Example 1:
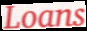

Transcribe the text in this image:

Loans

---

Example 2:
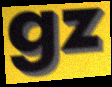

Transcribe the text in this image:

gz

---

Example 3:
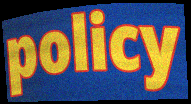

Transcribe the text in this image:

policy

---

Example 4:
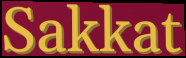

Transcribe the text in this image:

Sakkat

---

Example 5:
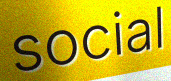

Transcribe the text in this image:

social